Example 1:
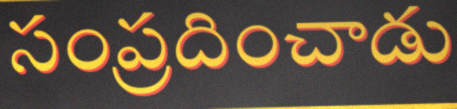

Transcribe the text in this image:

సంప్రదించాడు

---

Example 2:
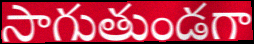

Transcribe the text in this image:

సాగుతుండగా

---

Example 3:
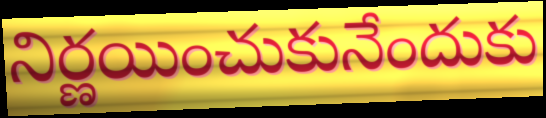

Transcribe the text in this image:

నిర్ణయించుకునేందుకు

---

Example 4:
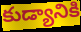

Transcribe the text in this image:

కుడ్యానికి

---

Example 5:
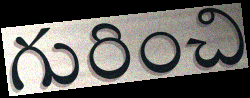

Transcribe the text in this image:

గురించి